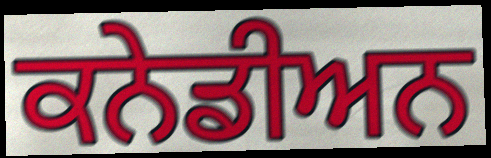
ਕਨੇਡੀਅਨ